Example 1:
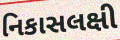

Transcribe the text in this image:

નિકાસલક્ષી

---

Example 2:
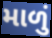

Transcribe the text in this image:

માળું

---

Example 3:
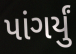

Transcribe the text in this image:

પાંગર્યું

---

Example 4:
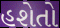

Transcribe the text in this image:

હશેતો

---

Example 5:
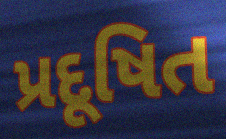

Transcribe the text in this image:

પ્રદૂષિત